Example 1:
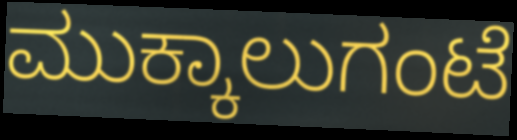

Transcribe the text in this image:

ಮುಕ್ಕಾಲುಗಂಟೆ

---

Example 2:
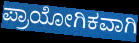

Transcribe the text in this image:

ಪ್ರಾಯೋಗಿಕವಾಗಿ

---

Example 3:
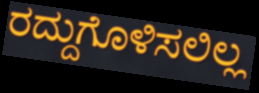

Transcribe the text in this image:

ರದ್ದುಗೊಳಿಸಲಿಲ್ಲ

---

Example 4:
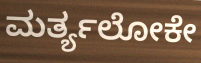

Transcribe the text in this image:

ಮರ್ತ್ಯಲೋಕೇ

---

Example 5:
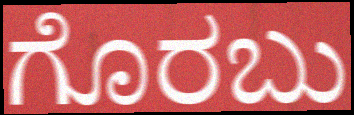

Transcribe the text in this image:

ಗೊರಬು